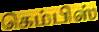
கெம்பிஸ்